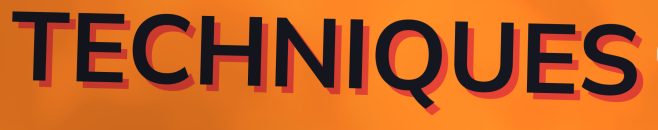
TECHNIQUES